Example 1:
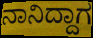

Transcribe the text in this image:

ನಾನಿದ್ದಾಗ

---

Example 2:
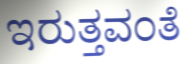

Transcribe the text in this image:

ಇರುತ್ತವಂತೆ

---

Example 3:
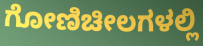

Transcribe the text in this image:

ಗೋಣಿಚೀಲಗಳಲ್ಲಿ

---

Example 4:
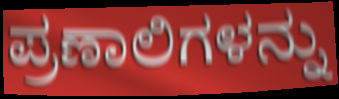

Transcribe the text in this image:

ಪ್ರಣಾಲಿಗಳನ್ನು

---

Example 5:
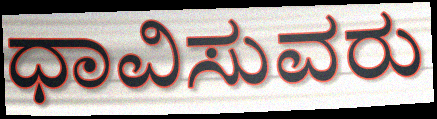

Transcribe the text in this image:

ಧಾವಿಸುವರು